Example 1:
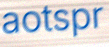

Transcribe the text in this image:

aotspr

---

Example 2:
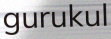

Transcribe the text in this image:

gurukul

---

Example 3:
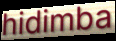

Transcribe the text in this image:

hidimba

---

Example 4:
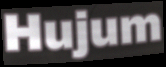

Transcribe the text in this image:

Hujum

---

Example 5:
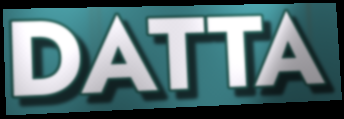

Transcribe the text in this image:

DATTA